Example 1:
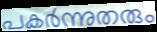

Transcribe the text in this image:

പകർന്നുതരും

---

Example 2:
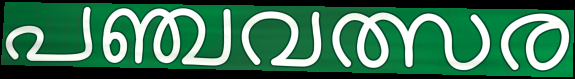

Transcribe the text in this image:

പഞ്ചവത്സര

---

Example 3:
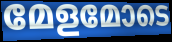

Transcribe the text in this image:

മേളമോടെ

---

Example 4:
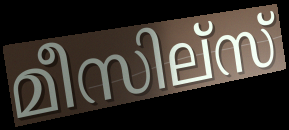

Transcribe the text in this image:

മീസില്സ്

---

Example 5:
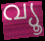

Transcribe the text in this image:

വ്യൂ